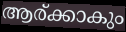
ആര്ക്കാകും